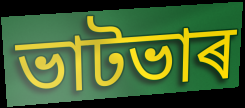
ভাটভাৰ